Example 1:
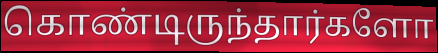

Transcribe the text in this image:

கொண்டிருந்தார்களோ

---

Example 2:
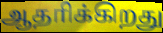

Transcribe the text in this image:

ஆதரிக்கிறது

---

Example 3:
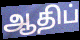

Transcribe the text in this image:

ஆதிப்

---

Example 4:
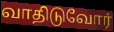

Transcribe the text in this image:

வாதிடுவோர்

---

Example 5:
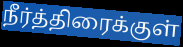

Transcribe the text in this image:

நீர்த்திரைக்குள்